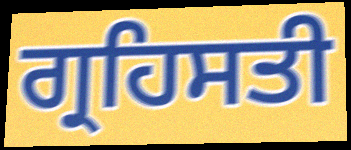
ਗ੍ਰਹਿਸਤੀ